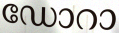
ഡോറാ